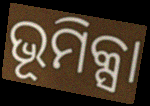
ଭୂମିକ୍ସା